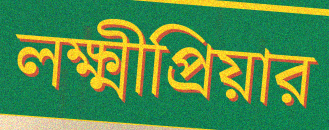
লক্ষ্মীপ্রিয়ার